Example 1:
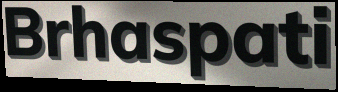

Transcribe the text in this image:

Brhaspati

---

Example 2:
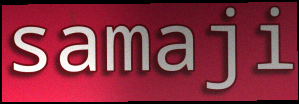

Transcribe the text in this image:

samaji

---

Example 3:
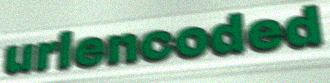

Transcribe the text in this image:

urlencoded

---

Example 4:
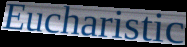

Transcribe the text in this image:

Eucharistic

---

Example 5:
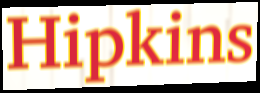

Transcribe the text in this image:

Hipkins